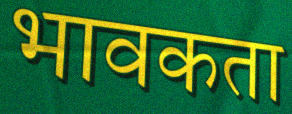
भावकता